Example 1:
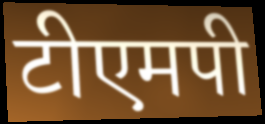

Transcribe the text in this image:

टीएमपी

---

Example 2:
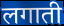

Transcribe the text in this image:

लगाती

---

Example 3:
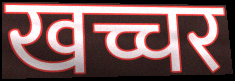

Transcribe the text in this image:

खच्चर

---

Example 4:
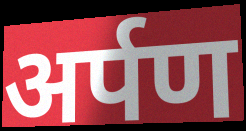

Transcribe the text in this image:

अर्पण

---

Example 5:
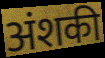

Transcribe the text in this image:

अंशकी